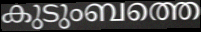
കുടുംബത്തെ